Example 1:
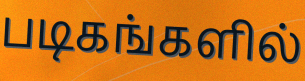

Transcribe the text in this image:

படிகங்களில்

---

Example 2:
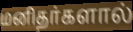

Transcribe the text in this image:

மனிதர்களால்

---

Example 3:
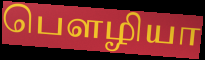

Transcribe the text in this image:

பௌழியா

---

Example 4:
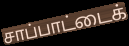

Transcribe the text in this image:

சாப்பாட்டைக்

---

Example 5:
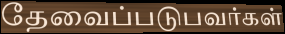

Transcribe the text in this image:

தேவைப்படுபவர்கள்